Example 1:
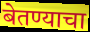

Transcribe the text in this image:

बेतण्याचा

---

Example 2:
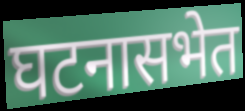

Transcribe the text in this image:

घटनासभेत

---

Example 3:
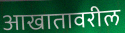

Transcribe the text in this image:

आखातावरील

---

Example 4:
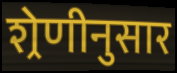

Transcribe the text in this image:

श्रेणीनुसार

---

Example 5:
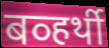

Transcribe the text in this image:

बव्हर्थी